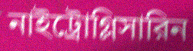
নাইট্রোগ্লিসারিন